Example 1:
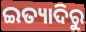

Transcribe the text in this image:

ଇତ୍ୟାଦିରୁ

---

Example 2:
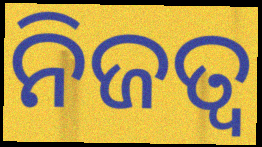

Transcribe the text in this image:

ନିଜତ୍ବ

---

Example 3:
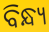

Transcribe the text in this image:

ବିନ୍ଧ୍ୟ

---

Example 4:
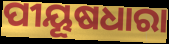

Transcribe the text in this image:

ପୀୟୂଷଧାରା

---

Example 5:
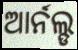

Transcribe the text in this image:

ଆର୍ନଲ୍ଡ